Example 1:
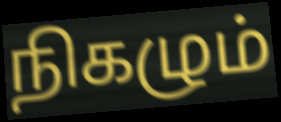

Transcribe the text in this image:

நிகழும்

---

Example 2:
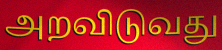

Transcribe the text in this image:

அறவிடுவது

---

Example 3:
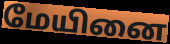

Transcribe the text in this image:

மேயினை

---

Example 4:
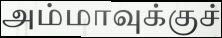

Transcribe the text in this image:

அம்மாவுக்குச்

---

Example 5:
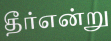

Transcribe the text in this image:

தீர்என்று